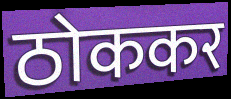
ठोककर